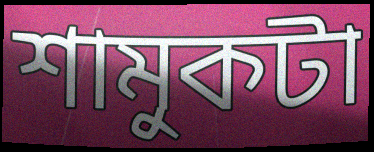
শামুকটা